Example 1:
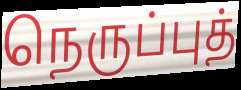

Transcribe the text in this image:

நெருப்புத்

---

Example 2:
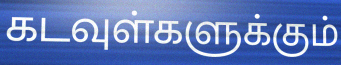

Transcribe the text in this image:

கடவுள்களுக்கும்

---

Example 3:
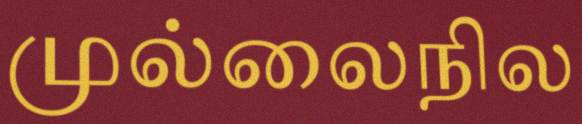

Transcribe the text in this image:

முல்லைநில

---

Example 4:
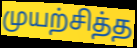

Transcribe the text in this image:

முயற்சித்த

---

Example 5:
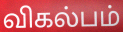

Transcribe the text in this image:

விகல்பம்